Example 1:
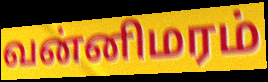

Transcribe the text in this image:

வன்னிமரம்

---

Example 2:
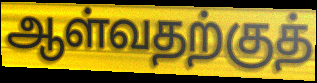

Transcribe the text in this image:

ஆள்வதற்குத்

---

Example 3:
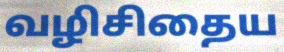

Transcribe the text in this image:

வழிசிதைய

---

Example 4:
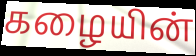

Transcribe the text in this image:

கழையின்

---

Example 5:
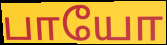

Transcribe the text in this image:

பாயோ